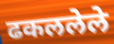
ढकललेले